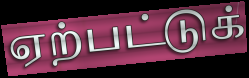
ஏற்பட்டுக்